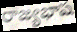
రాజ్యభాష